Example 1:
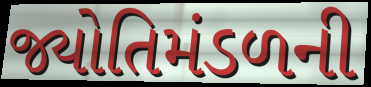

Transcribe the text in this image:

જ્યોતિમંડળની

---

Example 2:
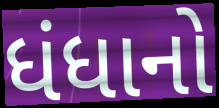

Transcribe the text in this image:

ધંધાનો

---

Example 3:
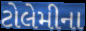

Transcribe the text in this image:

ટોલેમીના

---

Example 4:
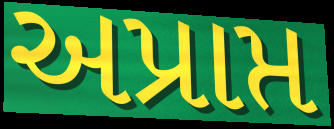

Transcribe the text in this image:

અપ્રાપ્ત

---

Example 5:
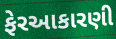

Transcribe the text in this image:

ફેરઆકારણી